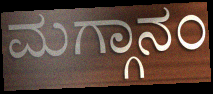
ಮಗ್ಗಾನಂ